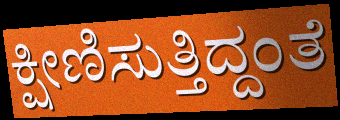
ಕ್ಷೀಣಿಸುತ್ತಿದ್ದಂತೆ